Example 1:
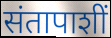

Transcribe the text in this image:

संतापाशीं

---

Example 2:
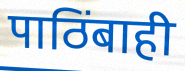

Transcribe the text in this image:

पाठिंबाही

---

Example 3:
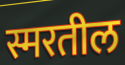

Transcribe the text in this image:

स्मरतील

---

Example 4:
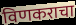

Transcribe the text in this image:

विणकराचा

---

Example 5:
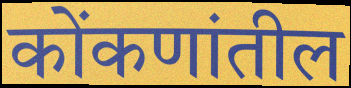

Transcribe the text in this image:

कोंकणांतील